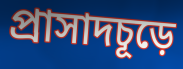
প্রাসাদচূড়ে